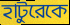
হাটুরেকে